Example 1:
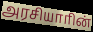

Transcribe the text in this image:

அரசியாரின்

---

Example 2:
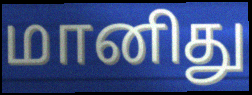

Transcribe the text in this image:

மானிது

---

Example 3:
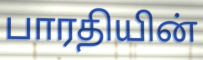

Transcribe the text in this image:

பாரதியின்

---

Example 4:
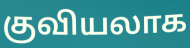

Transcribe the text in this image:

குவியலாக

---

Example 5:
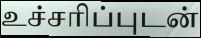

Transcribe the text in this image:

உச்சரிப்புடன்